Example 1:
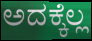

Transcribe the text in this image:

ಅದಕ್ಕೆಲ್ಲ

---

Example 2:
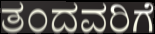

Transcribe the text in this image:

ತಂದವರಿಗೆ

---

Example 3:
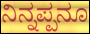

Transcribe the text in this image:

ನಿನ್ನಪ್ಪನೂ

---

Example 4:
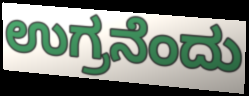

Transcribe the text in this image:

ಉಗ್ರನೆಂದು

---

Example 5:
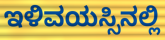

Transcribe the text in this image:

ಇಳಿವಯಸ್ಸಿನಲ್ಲಿ